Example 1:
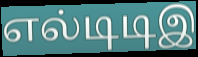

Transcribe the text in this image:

எல்டிடிஇ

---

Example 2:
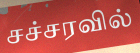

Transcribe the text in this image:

சச்சரவில்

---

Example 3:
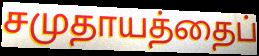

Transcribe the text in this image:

சமுதாயத்தைப்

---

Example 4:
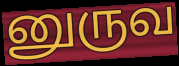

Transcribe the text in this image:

னுருவ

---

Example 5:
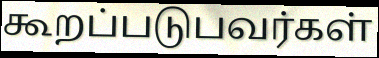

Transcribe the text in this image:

கூறப்படுபவர்கள்